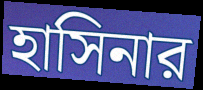
হাসিনার